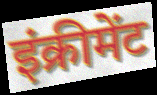
इंक्रीमेंट